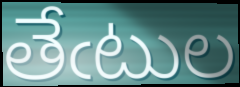
తేఁటుల